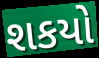
શકયો